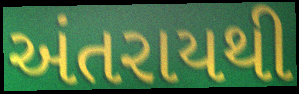
અંતરાયથી